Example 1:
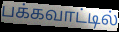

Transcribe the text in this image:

பக்கவாட்டில்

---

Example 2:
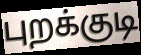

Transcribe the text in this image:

புறக்குடி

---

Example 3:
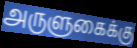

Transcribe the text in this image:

அருளுகைக்கு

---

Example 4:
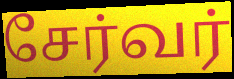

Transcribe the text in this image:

சேர்வர்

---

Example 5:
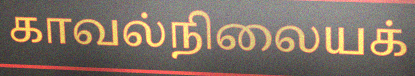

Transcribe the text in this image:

காவல்நிலையக்